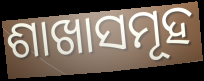
ଶାଖାସମୂହ